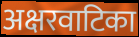
अक्षरवाटिका